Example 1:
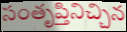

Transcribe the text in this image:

సంతృప్తినిచ్చిన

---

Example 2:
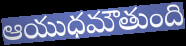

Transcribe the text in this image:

ఆయుధమౌతుంది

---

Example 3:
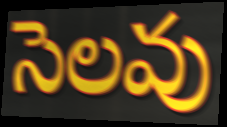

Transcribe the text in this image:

సెలవు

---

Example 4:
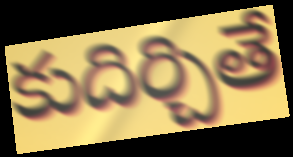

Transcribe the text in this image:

కుదిర్చితే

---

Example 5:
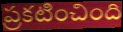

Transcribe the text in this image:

ప్రకటించింది